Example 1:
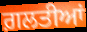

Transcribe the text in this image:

ਗ਼ਲਤੀਆਂ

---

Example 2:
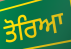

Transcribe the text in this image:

ਤੋਰਿਆ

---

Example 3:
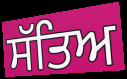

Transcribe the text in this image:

ਸੱਤਿਅ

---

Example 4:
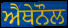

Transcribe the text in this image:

ਐਥੇਨੌਲ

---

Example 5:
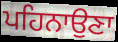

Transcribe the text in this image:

ਪਹਿਨਾਉਣਾ